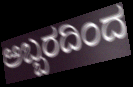
ಅಬ್ಬರದಿಂದ